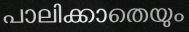
പാലിക്കാതെയും